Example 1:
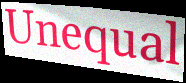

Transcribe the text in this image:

Unequal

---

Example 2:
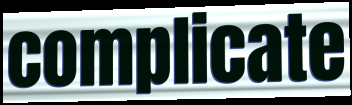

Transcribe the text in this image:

complicate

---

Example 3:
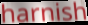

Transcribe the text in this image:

harnish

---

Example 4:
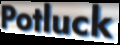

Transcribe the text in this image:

Potluck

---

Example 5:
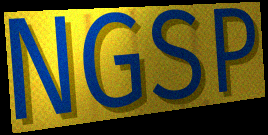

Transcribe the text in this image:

NGSP